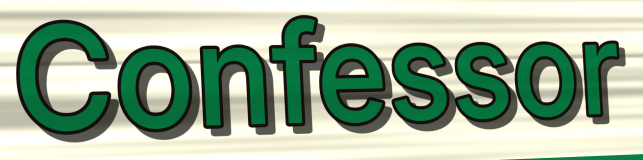
Confessor